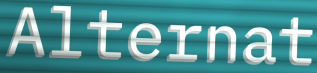
Alternat